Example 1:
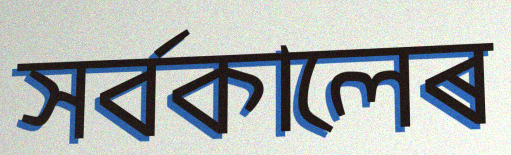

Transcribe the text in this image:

সৰ্বকালেৰ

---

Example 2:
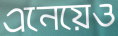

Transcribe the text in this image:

এনেয়েও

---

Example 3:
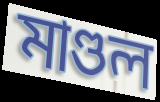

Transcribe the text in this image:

মাণ্ডল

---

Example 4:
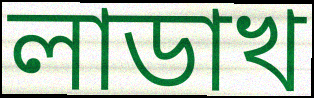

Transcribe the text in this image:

লাডাখ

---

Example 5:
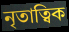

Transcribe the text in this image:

নৃতাত্বিক